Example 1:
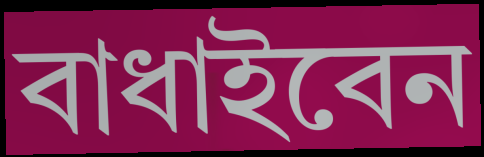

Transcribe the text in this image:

বাধাইবেন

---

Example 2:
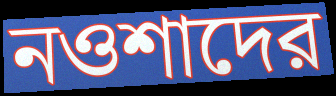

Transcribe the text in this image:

নওশাদের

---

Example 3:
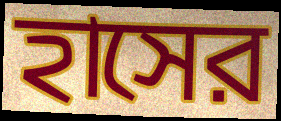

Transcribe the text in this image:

হাসের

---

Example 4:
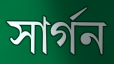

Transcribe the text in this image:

সার্গন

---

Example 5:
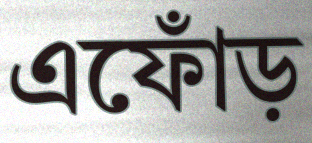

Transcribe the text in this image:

এফোঁড়